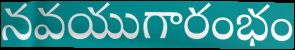
నవయుగారంభం